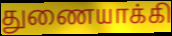
துணையாக்கி